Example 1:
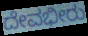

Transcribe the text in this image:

ದೇವಭೀರು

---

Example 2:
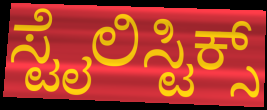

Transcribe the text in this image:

ಸ್ಟೈಲಿಸ್ಟಿಕ್ಸ್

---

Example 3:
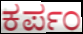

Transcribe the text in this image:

ಕರ್ಪಂ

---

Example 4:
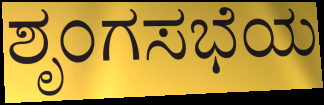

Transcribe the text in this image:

ಶೃಂಗಸಭೆಯ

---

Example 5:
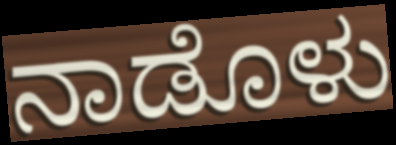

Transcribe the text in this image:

ನಾಡೊಳು